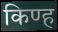
किण्ह